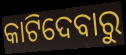
କାଟିଦେବାରୁ